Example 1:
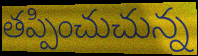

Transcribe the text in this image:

తప్పించుచున్న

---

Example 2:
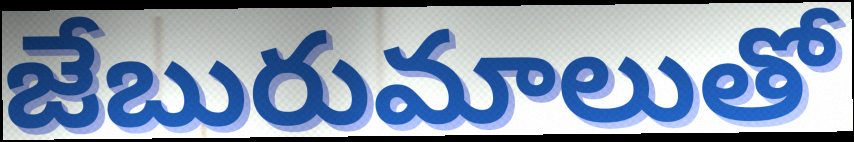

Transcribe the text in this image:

జేబురుమాలుతో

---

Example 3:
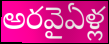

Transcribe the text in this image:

అరవైఏళ్ల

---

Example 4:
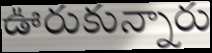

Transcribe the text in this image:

ఊరుకున్నారు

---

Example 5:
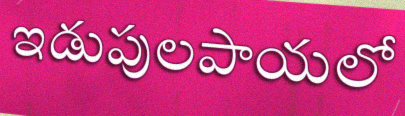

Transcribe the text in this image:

ఇడుపులపాయలో